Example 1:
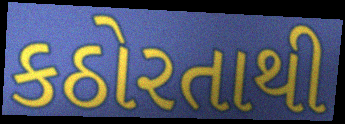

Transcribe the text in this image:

કઠોરતાથી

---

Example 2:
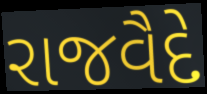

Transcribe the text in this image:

રાજવૈદે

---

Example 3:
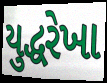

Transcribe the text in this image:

યુદ્ધરેખા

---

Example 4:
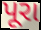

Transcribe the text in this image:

પૂરા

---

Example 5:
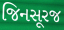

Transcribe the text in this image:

જિનસૂરજ